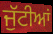
ਜੁੱਟੀਆਂ